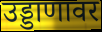
उड्डाणावर